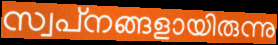
സ്വപ്‌നങ്ങളായിരുന്നു